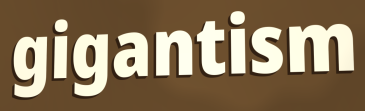
gigantism